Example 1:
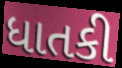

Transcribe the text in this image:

ધાતકી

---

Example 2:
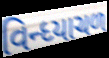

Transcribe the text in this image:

વિન્ધ્યાચળ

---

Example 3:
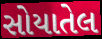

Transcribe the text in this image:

સોયાતેલ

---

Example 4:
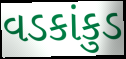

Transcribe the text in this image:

વડકાંકુડ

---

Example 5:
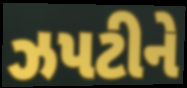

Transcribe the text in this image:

ઝપટીને